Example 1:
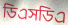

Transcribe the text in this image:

ডিএসডিএ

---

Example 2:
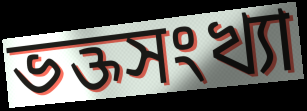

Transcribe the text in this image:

ভক্তসংখ্যা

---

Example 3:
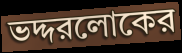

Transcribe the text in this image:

ভদ্দরলোকের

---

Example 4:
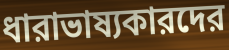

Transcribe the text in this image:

ধারাভাষ্যকারদের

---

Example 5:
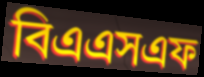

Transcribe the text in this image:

বিএএসএফ